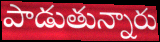
పాడుతున్నారు